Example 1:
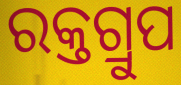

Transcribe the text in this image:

ରକ୍ତଗ୍ରୁପ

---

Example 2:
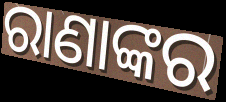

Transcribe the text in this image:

ରାଣାଙ୍କର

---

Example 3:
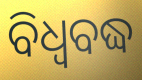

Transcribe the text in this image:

ବିଧ୍ଵବଦ୍ଧ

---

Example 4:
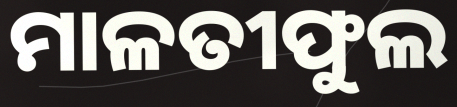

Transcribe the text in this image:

ମାଳତୀଫୁଲ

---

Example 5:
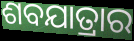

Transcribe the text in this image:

ଶବଯାତ୍ରାର